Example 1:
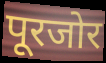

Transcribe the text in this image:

पूरजोर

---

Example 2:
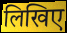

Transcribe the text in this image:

लिखिए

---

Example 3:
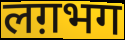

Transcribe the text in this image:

लग़भग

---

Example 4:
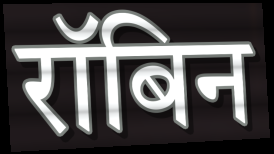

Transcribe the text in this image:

रॉबिन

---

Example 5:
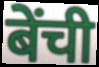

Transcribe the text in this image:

बेंची